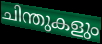
ചിന്തുകളും